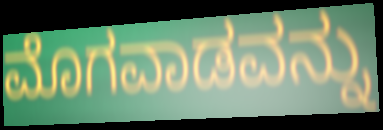
ಮೊಗವಾಡವನ್ನು